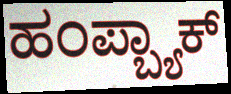
ಹಂಪ್ಬ್ಯಾಕ್